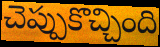
చెప్పుకొచ్చింది